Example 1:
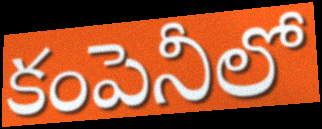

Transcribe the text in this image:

కంపెనీలో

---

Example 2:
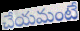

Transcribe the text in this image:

చేయమంటే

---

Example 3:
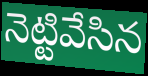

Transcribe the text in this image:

నెట్టివేసిన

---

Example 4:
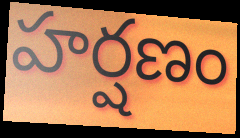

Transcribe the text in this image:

హర్షణం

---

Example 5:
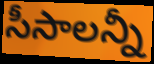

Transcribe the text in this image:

సీసాలన్నీ